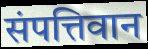
संपत्तिवान